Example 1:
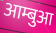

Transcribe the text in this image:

आम्बुआ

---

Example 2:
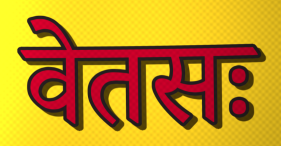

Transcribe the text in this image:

वेतसः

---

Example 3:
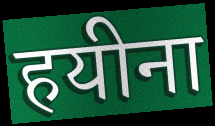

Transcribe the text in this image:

हयीना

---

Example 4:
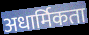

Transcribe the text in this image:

अधार्मिकता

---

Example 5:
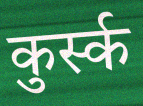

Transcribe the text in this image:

कुर्स्क